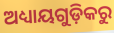
ଅଧ୍ୟାୟଗୁଡ଼ିକରୁ